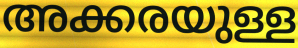
അക്കരയുള്ള